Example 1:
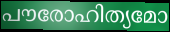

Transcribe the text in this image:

പൗരോഹിത്യമോ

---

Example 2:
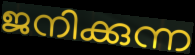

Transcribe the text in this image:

ജനിക്കുന്ന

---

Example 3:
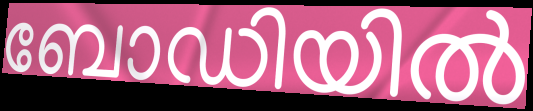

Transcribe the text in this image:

ബോഡിയിൽ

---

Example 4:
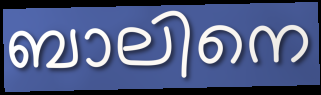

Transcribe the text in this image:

ബാലിനെ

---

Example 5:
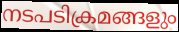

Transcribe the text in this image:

നടപടിക്രമങ്ങളും